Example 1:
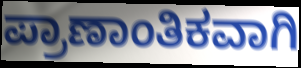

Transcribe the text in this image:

ಪ್ರಾಣಾಂತಿಕವಾಗಿ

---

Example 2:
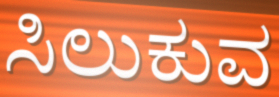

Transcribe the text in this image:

ಸಿಲುಕುವ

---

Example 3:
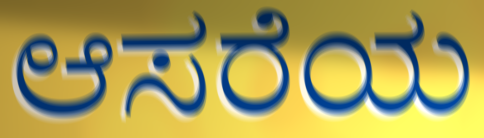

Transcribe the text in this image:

ಆಸರೆಯ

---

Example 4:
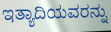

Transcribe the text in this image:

ಇತ್ಯಾದಿಯವರನ್ನು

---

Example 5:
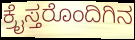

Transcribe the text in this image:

ಕ್ರೈಸ್ತರೊಂದಿಗಿನ